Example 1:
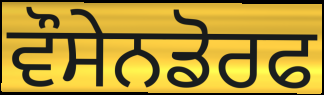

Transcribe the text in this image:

ਵੌਸੇਨਡੋਰਫ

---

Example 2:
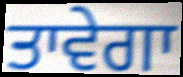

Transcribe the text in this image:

ਤਾਵੇਗਾ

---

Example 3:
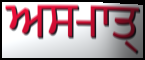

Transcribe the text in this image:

ਅਸ੍ਮਾਤ੍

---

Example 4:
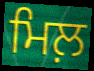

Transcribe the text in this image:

ਮਿਲ਼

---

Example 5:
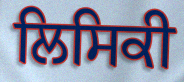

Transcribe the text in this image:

ਲਿਸਿਕੀ